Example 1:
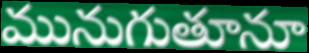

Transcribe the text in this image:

మునుగుతూనూ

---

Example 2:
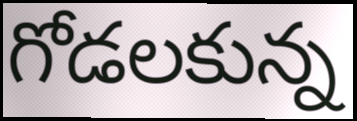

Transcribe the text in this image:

గోడలకున్న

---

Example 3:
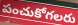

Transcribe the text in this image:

పంచుకోగలరు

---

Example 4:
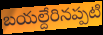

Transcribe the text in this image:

బయల్దేరినప్పటి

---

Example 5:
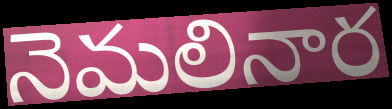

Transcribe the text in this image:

నెమలినార